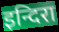
इन्दिरा